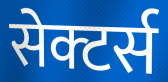
सेक्‍टर्स